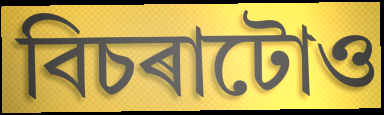
বিচৰাটোও